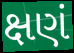
ક્ષણં